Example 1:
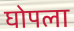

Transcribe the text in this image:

घोपला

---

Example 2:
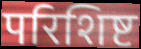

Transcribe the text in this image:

परिशिष्ट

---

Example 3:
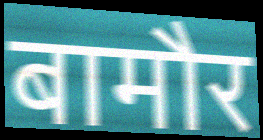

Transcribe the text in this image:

बामौर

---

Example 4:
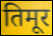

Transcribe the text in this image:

तिमूर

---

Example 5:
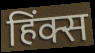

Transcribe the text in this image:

हिंक्स